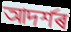
আদৰ্শৰ